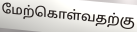
மேற்கொள்வதற்கு